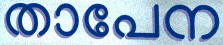
താപേന